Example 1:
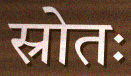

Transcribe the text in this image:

स्रोतः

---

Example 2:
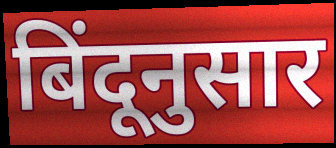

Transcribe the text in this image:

बिंदूनुसार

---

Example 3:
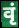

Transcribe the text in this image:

वृं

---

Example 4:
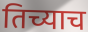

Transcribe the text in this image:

तिच्याच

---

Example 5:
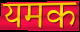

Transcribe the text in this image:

यमक